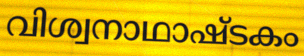
വിശ്വനാഥാഷ്ടകം